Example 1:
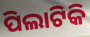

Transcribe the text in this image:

ପିଲାଟିକି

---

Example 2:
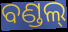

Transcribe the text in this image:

ବଣ୍ଡଲ୍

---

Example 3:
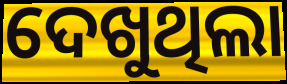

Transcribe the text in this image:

ଦେଖୁଥିଲା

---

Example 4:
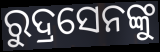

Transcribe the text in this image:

ରୁଦ୍ରସେନଙ୍କୁ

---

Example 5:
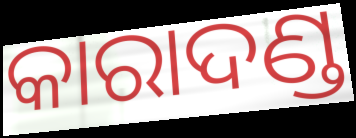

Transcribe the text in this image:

କାରାଦଣ୍ଡ